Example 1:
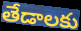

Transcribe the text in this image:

తేడాలకు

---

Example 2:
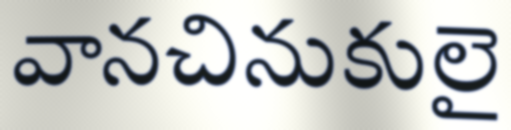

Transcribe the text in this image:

వానచినుకులై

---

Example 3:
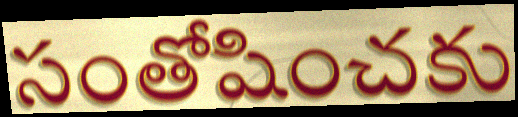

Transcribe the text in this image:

సంతోషించకు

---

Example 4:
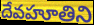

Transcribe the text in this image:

దేవహూతిని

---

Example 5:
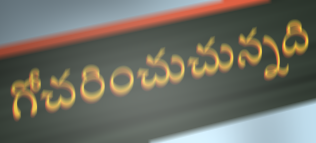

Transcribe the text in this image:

గోచరించుచున్నది